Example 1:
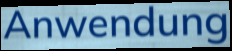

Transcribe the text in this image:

Anwendung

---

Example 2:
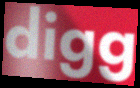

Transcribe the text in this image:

digg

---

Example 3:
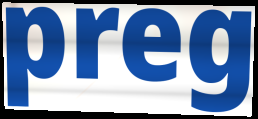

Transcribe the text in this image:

preg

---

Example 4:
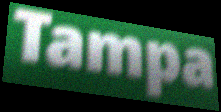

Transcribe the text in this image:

Tampa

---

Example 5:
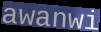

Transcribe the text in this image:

awanwi